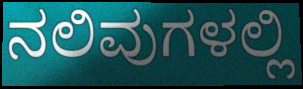
ನಲಿವುಗಳಲ್ಲಿ